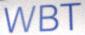
WBT